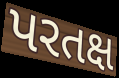
પરતક્ષ